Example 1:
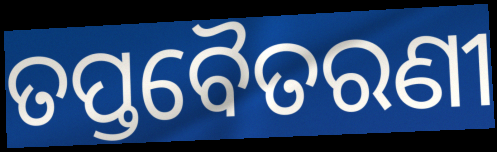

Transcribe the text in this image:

ତପ୍ତବୈତରଣୀ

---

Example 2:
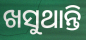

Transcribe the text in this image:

ଖସୁଥାନ୍ତି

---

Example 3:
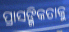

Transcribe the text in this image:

ପ୍ରାସଙ୍ଗିକତାକୁ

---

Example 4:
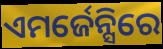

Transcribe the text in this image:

ଏମର୍ଜେନ୍ସିରେ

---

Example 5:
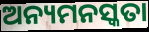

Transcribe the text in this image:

ଅନ୍ୟମନସ୍କତା